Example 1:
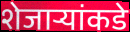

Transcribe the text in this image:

शेजाऱ्यांकडे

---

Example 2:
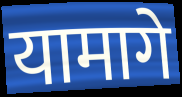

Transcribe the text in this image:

यामागे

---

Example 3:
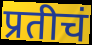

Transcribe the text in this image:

प्रतीचं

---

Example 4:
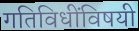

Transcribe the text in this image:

गतिविधींविषयी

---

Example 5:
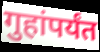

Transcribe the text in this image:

गुहांपर्यंत